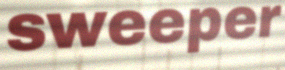
sweeper